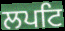
ਲਪਟਿ